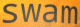
swam